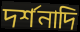
দর্শনাদি